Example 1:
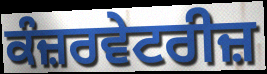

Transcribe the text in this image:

ਕੰਜ਼ਰਵੇਟਰੀਜ਼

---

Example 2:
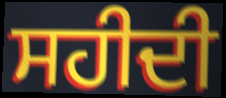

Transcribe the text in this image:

ਸਹੀਦੀ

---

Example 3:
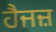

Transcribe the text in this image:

ਹੈਜਜ਼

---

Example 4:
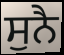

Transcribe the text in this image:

ਸੁਨੈ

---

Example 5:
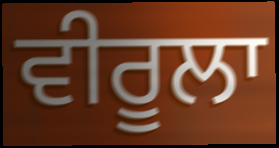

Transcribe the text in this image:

ਵੀਰੂਲਾ